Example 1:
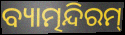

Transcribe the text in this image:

ବ୍ୟାତ୍ମନ୍ଦିରମ୍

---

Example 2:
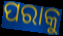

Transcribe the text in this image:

ପରାକୁ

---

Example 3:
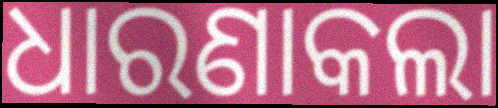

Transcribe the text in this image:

ଧାରଣାକଲା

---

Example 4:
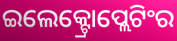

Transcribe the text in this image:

ଇଲେକ୍ଟ୍ରୋପ୍ଲେଟିଂର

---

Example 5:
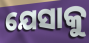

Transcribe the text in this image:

ଯେସାକୁ